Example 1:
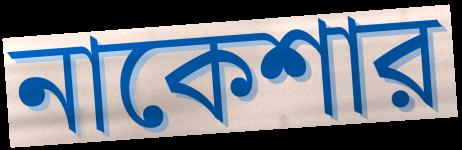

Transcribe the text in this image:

নাকেশার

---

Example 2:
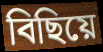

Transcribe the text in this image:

বিছিয়ে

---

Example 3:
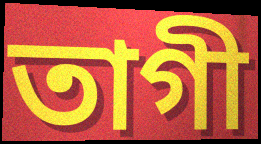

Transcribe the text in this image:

তাগী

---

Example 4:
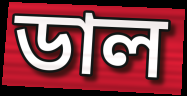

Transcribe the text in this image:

ডাল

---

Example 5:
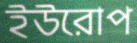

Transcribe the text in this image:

ইউরোপ